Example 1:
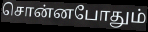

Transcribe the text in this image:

சொன்னபோதும்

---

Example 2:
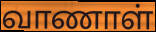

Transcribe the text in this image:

வாணாள்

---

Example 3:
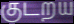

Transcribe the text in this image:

குடறய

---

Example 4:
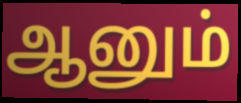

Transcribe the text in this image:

ஆனும்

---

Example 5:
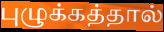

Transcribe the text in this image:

புழுக்கத்தால்